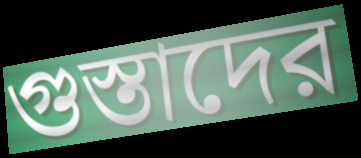
গুস্তাদের